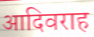
आदिवराह